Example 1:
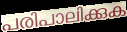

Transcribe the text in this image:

പരിപാലിക്കുക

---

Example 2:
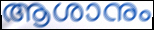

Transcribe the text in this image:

ആശാനും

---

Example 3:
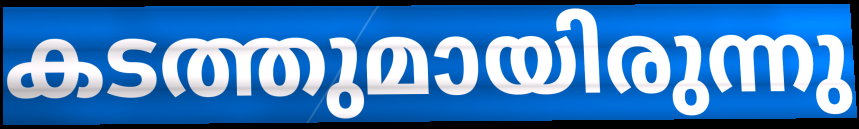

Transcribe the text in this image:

കടത്തുമായിരുന്നു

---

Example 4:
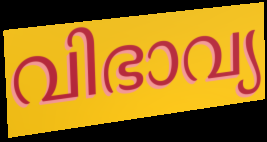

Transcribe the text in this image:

വിഭാവ്യ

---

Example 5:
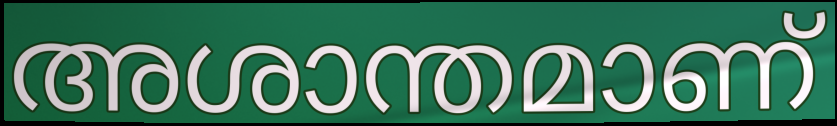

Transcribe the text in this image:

അശാന്തമാണ്